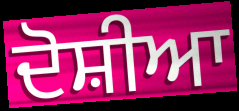
ਦੋਸ਼ੀਆ